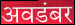
अवडंबर